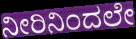
ನೀರಿನಿಂದಲೇ